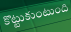
కొట్టుకుంటుంది